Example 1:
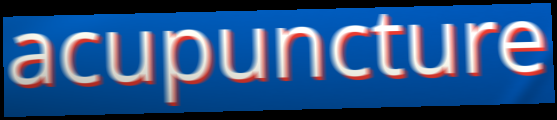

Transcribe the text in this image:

acupuncture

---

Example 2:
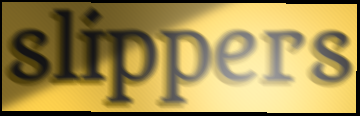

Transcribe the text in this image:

slippers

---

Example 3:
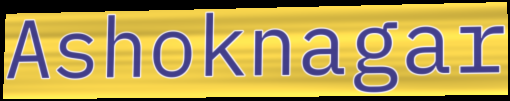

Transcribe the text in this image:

Ashoknagar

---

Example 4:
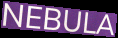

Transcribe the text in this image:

NEBULA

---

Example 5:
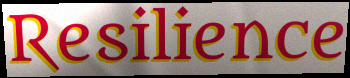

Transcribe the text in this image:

Resilience